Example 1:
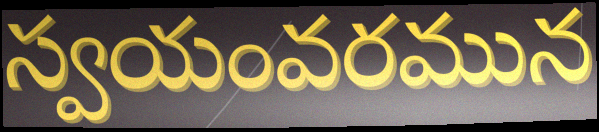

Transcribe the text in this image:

స్వయంవరమున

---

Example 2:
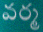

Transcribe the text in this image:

వర్మ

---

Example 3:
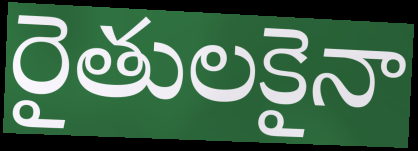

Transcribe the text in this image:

రైతులకైనా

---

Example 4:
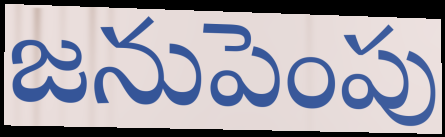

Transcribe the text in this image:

జనుపెంపు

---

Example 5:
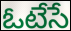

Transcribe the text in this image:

ఓటేసే